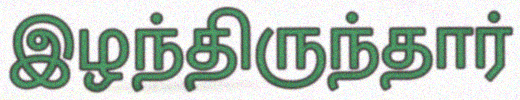
இழந்திருந்தார்